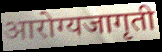
आरोग्यजागृती